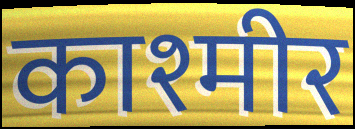
काश्मीर